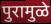
पुरामुळे